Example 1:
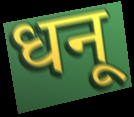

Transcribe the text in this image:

धनू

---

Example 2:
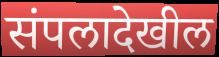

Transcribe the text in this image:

संपलादेखील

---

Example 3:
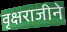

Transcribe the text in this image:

वृक्षराजीने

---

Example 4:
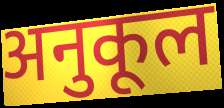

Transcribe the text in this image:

अनुकूल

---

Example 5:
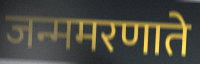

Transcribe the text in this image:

जन्ममरणाते